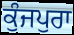
ਕੁੰਜਪੁਰਾ